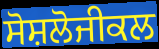
ਸੋਸ਼ਲੋਜੀਕਲ